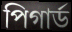
পিগার্ড